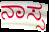
ನಾಸ್ಸ